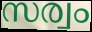
സര്വം